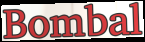
Bombal